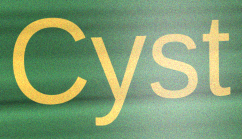
Cyst